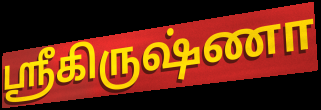
ஸ்ரீகிருஷ்ணா